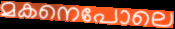
മകനെപോലെ